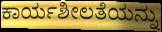
ಕಾರ್ಯಶೀಲತೆಯನ್ನು